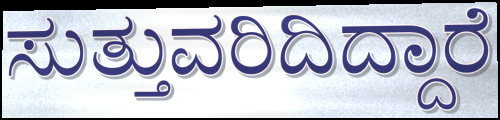
ಸುತ್ತುವರಿದಿದ್ದಾರೆ